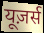
यूज़र्स